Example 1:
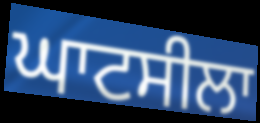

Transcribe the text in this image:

ਘਾਟਸੀਲਾ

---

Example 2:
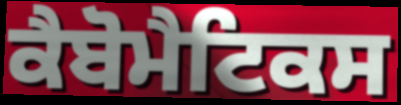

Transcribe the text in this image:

ਕੈਬੋਮੈਟਿਕਸ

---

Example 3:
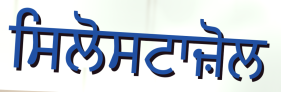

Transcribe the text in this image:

ਸਿਲੋਸਟਾਜ਼ੋਲ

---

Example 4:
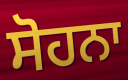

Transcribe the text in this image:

ਸੋਹਨਾ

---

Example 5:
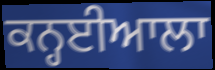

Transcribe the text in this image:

ਕਨ੍ਹਈਆਲਾ